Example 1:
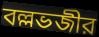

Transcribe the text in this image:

বল্লভজীর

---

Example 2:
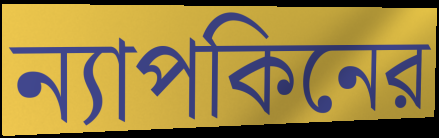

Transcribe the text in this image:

ন্যাপকিনের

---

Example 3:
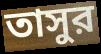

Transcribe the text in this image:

তাসুর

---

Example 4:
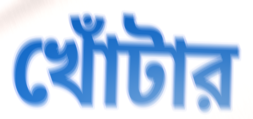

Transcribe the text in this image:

খোঁটার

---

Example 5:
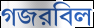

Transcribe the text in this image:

গজরবিল